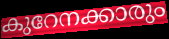
കുറേനക്കാരും